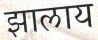
झालाय